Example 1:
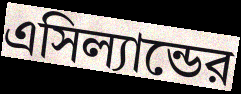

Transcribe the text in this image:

এসিল্যান্ডের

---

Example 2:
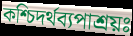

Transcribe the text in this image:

কশ্চিদর্থব্যপাশ্রয়ঃ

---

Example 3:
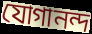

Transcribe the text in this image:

যোগানন্দ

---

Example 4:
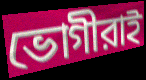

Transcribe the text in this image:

ভোগীরাই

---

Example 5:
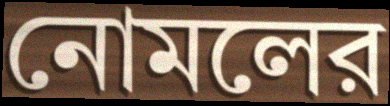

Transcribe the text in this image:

নোমলের